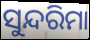
ସୁନ୍ଦରିମା